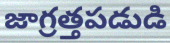
జాగ్రత్తపడుడి